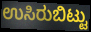
ಉಸಿರುಬಿಟ್ಟು